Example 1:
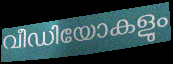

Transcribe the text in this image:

വീഡിയോകളും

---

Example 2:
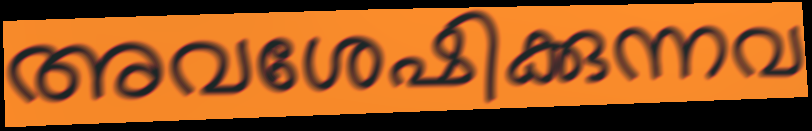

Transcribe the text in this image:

അവശേഷിക്കുന്നവ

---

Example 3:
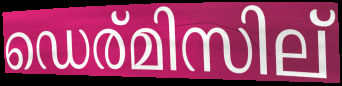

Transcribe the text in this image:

ഡെര്മിസില്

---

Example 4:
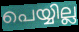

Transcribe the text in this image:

പെയ്യില്ല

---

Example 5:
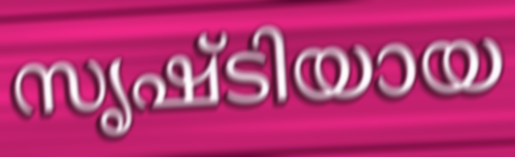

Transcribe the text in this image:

സൃഷ്ടിയായ